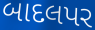
બાદલપર